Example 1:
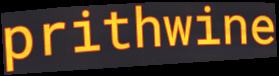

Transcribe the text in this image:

prithwine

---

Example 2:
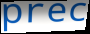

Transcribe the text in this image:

prec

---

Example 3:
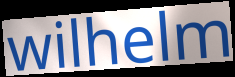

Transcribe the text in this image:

wilhelm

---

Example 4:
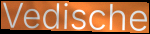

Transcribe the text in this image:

Vedische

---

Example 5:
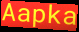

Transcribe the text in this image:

Aapka